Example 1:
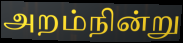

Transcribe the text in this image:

அறம்நின்று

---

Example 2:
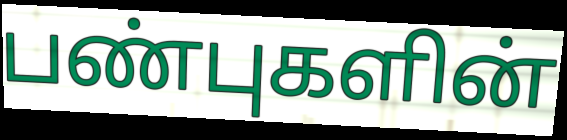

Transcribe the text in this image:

பண்புகளின்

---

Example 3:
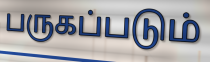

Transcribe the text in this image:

பருகப்படும்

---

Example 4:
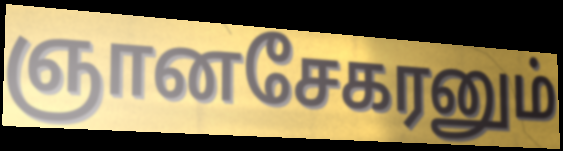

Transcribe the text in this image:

ஞானசேகரனும்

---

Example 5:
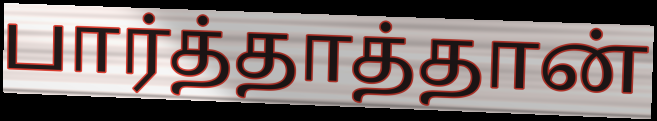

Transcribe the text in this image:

பார்த்தாத்தான்